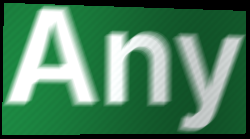
Any